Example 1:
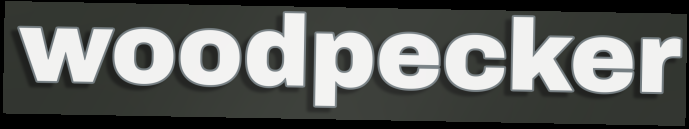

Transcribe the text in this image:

woodpecker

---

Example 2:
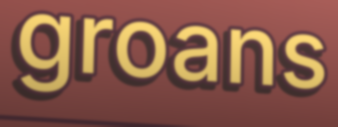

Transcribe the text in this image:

groans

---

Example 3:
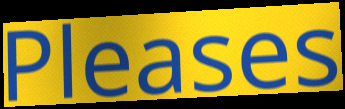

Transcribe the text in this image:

Pleases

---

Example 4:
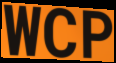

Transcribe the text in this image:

WCP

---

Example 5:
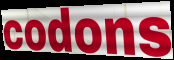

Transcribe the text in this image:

codons